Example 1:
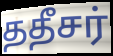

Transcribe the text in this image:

ததீசர்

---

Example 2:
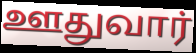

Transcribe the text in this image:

ஊதுவார்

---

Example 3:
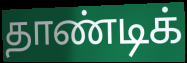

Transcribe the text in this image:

தாண்டிக்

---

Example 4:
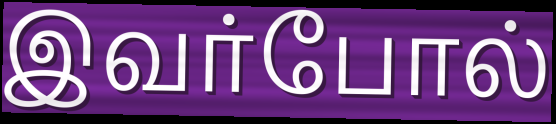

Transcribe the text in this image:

இவர்போல்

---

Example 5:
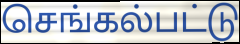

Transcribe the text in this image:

செங்கல்பட்டு